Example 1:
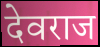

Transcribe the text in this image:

देवराज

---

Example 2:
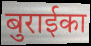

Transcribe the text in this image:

बुराईका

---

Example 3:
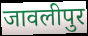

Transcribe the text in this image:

जावलीपुर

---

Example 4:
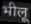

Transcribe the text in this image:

भीलू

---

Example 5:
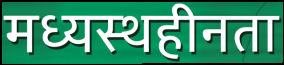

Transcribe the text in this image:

मध्यस्थहीनता